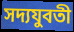
সদ্যযুবতী